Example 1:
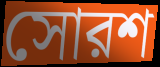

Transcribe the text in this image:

সোরশ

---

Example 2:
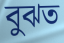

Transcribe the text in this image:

বুঝত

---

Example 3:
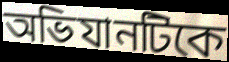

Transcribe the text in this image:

অভিযানটিকে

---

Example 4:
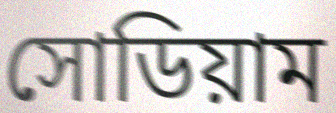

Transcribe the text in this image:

সোডিয়াম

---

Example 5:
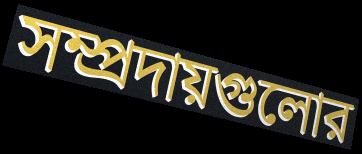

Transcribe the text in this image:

সম্প্রদায়গুলোর